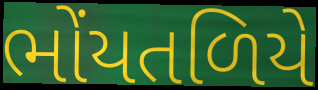
ભોંયતળિયે